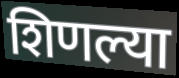
शिणल्या